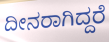
ದೀನರಾಗಿದ್ದರೆ